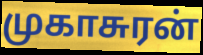
முகாசுரன்